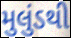
મુલુંડથી